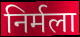
निर्मला